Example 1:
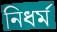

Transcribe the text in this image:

নিধর্ম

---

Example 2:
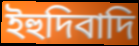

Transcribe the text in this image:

ইহুদিবাদি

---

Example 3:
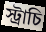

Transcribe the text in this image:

স্ট্রাচি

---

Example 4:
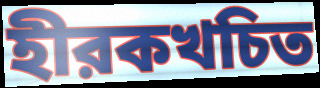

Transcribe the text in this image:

হীরকখচিত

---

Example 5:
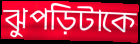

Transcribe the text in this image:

ঝুপড়িটাকে